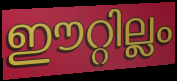
ഈറ്റില്ലം